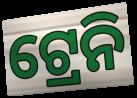
ଟ୍ରେନି